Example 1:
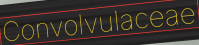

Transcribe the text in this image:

Convolvulaceae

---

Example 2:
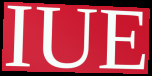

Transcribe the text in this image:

IUE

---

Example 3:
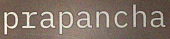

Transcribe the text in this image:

prapancha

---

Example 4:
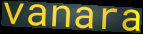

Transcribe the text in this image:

vanara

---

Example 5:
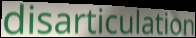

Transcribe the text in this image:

disarticulation